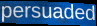
persuaded